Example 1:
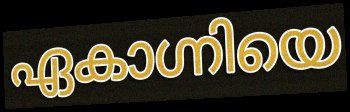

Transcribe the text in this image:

ഏകാഗ്നിയെ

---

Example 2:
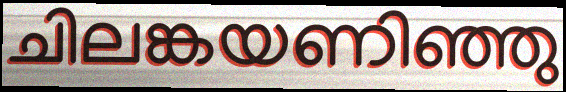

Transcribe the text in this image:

ചിലങ്കയണിഞ്ഞു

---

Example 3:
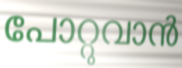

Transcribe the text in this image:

പോറ്റുവാൻ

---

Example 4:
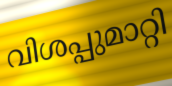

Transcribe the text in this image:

വിശപ്പുമാറ്റി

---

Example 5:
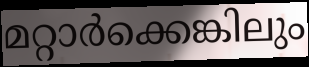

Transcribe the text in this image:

മറ്റാർക്കെങ്കിലും